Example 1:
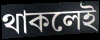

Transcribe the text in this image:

থাকলেই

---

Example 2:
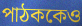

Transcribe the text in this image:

পাঠককেও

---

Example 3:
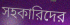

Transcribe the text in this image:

সহকারিদের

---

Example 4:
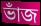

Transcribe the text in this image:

ভাঁজ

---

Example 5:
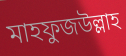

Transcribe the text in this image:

মাহফুজউল্লাহ